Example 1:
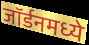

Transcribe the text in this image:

जॉर्डनमध्ये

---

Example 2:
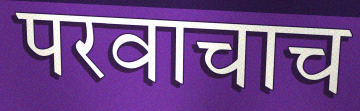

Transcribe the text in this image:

परवाचाच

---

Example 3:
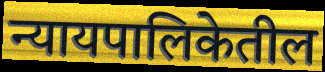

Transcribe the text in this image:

न्यायपालिकेतील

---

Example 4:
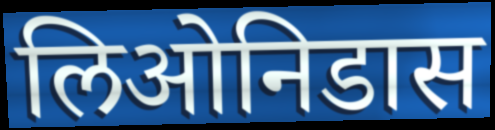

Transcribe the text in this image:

लिओनिडास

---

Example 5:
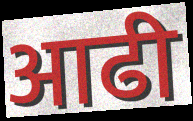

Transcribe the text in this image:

आढी